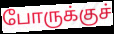
போருக்குச்